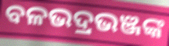
ବଳଭଦ୍ରଭଞ୍ଜଙ୍କ